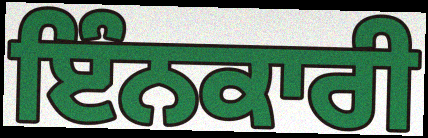
ਇੰਨਕਾਰੀ